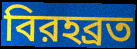
বিরহব্রত